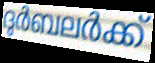
ദുർബലർക്ക്